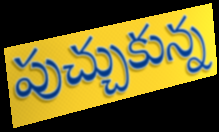
పుచ్చుకున్న